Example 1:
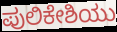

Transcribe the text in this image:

ಪುಲಿಕೇಶಿಯು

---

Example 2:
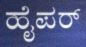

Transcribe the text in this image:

ಹೈಪರ್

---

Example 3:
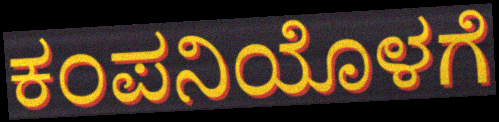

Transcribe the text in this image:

ಕಂಪನಿಯೊಳಗೆ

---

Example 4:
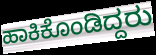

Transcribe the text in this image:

ಹಾಕಿಕೊಂಡಿದ್ದರು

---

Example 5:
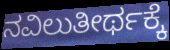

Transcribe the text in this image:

ನವಿಲುತೀರ್ಥಕ್ಕೆ